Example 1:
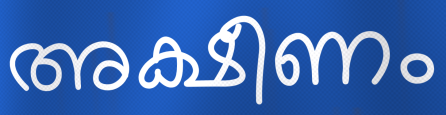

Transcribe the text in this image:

അക്ഷീണം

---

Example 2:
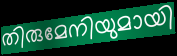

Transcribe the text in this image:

തിരുമേനിയുമായി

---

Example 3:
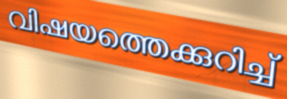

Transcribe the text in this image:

വിഷയത്തെക്കുറിച്ച്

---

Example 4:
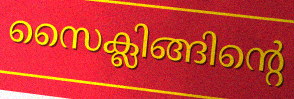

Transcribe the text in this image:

സൈക്ലിങ്ങിന്റെ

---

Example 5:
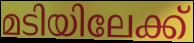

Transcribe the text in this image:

മടിയിലേക്ക്